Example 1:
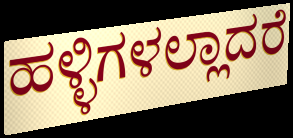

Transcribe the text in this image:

ಹಳ್ಳಿಗಳಲ್ಲಾದರೆ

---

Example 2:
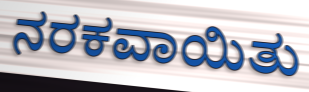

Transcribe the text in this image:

ನರಕವಾಯಿತು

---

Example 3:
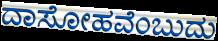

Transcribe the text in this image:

ದಾಸೋಹವೆಂಬುದು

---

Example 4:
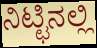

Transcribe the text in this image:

ನಿಟ್ಟಿನಲ್ಲಿ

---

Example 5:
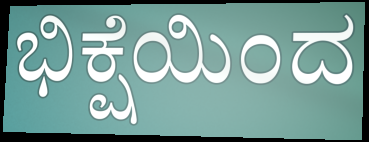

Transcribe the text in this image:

ಭಿಕ್ಷೆಯಿಂದ